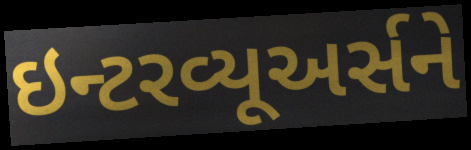
ઇન્ટરવ્યૂઅર્સને